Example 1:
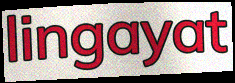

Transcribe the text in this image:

lingayat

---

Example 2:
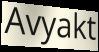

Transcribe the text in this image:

Avyakt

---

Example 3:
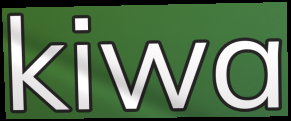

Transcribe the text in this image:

kiwa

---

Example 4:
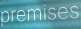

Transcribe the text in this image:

premises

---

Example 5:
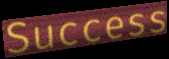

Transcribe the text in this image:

Success